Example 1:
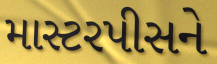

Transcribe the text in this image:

માસ્ટરપીસને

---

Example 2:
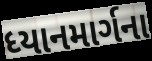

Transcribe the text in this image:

ધ્યાનમાર્ગના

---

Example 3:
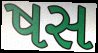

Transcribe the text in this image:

ષસ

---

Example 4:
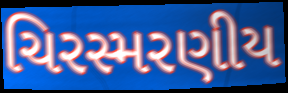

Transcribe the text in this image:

ચિરસ્મરણીય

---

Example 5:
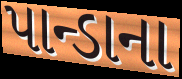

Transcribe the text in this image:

પાન્ડાના